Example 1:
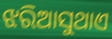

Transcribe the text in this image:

ଝରିଆସୁଥାଏ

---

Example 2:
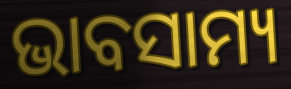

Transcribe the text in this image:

ଭାବସାମ୍ୟ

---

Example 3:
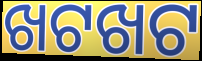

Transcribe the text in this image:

ଖଟଖଟ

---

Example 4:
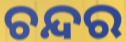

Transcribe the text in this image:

ଚନ୍ଦର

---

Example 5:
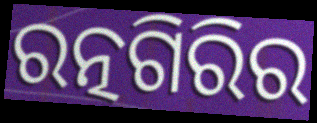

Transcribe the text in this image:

ରତ୍ନଗିରିର